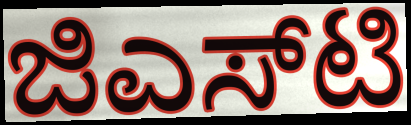
ಜಿಎಸ್‌ಟಿ